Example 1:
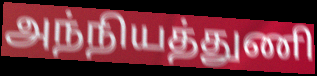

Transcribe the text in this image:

அந்நியத்துணி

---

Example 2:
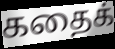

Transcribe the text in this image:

கதைக்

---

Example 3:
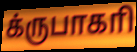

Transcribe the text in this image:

க்ருபாகரி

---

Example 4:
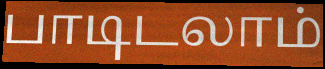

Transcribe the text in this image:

பாடிடலாம்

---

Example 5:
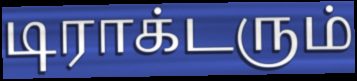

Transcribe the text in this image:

டிராக்டரும்